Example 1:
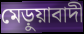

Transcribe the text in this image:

মেড়ুয়াবাদী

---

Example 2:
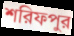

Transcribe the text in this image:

শরিফপুর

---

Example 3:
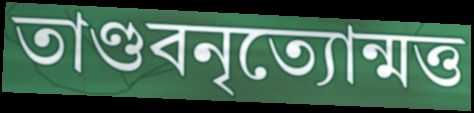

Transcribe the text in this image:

তাণ্ডবনৃত্যোন্মত্ত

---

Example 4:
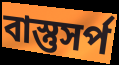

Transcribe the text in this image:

বাস্তুসর্প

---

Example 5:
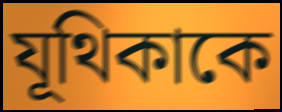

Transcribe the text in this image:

যূথিকাকে